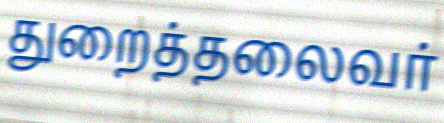
துறைத்தலைவர்